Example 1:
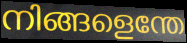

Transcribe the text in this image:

നിങ്ങളെന്തേ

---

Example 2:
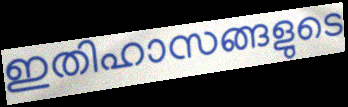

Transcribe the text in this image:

ഇതിഹാസങ്ങളുടെ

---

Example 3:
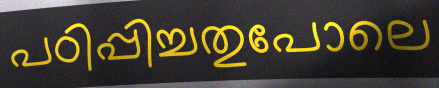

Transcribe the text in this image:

പഠിപ്പിച്ചതുപോലെ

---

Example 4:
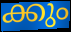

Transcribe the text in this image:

ക്കും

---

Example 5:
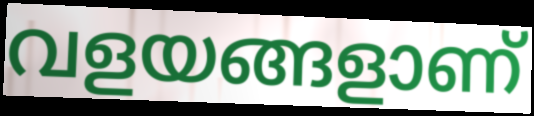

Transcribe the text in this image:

വളയങ്ങളാണ്